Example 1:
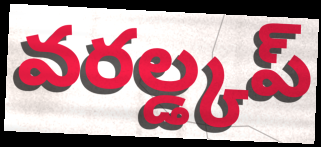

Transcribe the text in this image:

వరల్డ్కప్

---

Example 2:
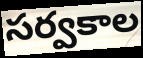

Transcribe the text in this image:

సర్వకాల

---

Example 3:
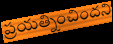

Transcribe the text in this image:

ప్రయత్నించిందని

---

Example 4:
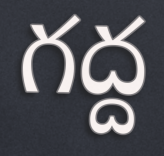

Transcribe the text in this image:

గద్ద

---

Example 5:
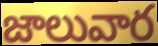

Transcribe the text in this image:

జాలువార